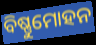
ବିଷ୍ଣୁମୋହନ